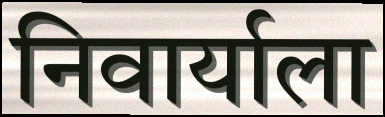
निवार्याला